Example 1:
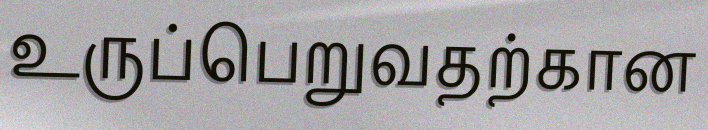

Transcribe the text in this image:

உருப்பெறுவதற்கான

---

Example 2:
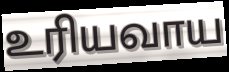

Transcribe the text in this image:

உரியவாய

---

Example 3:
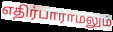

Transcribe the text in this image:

எதிர்பாராமலும்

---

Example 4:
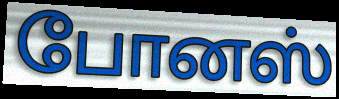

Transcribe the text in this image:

போனஸ்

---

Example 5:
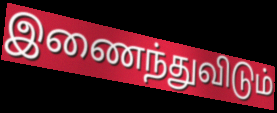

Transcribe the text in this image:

இணைந்துவிடும்